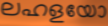
ലഹളയോ